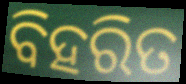
ବିହରିତ